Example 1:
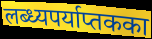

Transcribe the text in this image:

लब्ध्यपर्याप्तकका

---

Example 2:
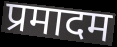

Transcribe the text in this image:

प्रमादम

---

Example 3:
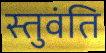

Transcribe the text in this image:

स्तुवंति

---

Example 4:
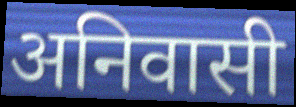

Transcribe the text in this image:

अनिवासी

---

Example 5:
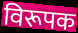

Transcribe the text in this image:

विरूपक